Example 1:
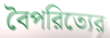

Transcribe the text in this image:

বৈপরিত্যের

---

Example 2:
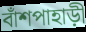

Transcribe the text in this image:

বাঁশপাহাড়ী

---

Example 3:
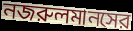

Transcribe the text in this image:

নজরুলমানসের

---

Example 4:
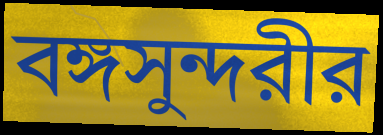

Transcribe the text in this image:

বঙ্গসুন্দরীর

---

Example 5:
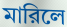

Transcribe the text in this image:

মারিলে